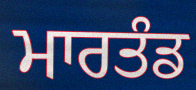
ਮਾਰਤੰਡ